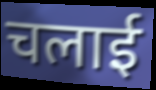
चलाई